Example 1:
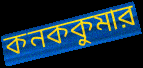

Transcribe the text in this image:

কনককুমার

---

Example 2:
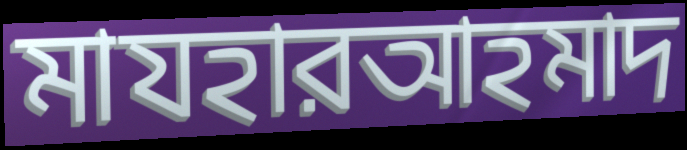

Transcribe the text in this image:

মাযহারআহমাদ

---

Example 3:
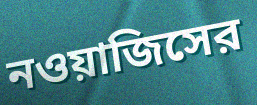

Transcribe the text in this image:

নওয়াজিসের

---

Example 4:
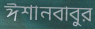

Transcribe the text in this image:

ঈশানবাবুর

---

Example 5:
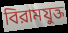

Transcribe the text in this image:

বিরামযুক্ত